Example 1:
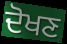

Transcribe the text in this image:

ਦੋਖਣ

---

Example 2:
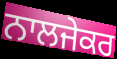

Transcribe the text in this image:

ਨਾਲਜੇਕਰ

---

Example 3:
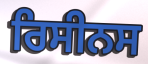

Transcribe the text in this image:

ਰਿਸੀਨਸ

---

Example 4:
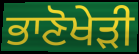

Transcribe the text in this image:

ਭਾਣੋਖੇੜੀ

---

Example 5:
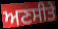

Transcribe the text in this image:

ਅਣਸੀਤੇ